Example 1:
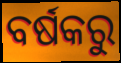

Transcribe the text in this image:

ବର୍ଷକରୁ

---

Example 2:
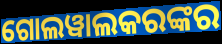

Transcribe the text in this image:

ଗୋଲୱାଲକରଙ୍କର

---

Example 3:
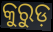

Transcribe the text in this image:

କୁରୁଡ଼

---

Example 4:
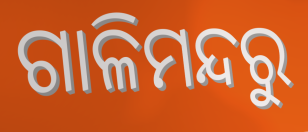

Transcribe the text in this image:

ଗାଳିମନ୍ଦରୁ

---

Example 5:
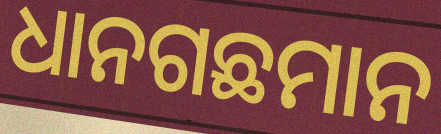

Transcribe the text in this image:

ଧାନଗଛମାନ